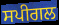
ਸਪੀਗਲ